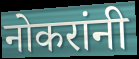
नोकरांनी